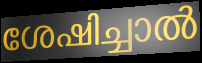
ശേഷിച്ചാൽ